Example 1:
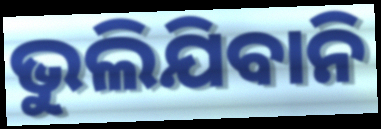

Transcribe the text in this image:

ଭୁଲିଯିବାନି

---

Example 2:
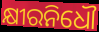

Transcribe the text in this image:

କ୍ଷୀରନିଧୌ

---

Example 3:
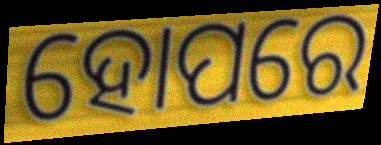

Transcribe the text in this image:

ହୋପରେ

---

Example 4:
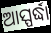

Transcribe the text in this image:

ଆସ୍ପର୍ଦ୍ଧା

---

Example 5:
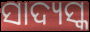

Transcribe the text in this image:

ସାଦ୍ୟସ୍କ